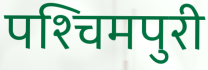
पश्चिमपुरी